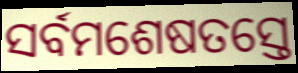
ସର୍ବମଶେଷତସ୍ତେ